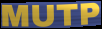
MUTP